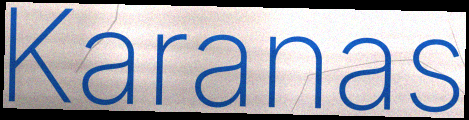
Karanas